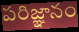
పరిజ్ఞానం